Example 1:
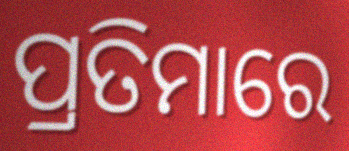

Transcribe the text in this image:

ପ୍ରତିମାରେ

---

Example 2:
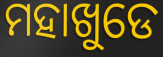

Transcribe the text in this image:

ମହାଖୁଡେ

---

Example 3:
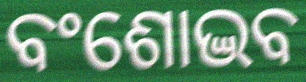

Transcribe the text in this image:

ବଂଶୋଦ୍ଭବ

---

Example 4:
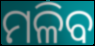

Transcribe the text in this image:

ମଳିବ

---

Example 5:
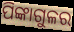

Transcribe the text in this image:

ପିଙ୍କାଗୁଳର